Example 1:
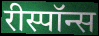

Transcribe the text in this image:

रीस्पॉन्स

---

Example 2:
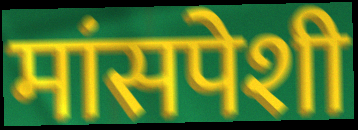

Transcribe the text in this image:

मांसपेशी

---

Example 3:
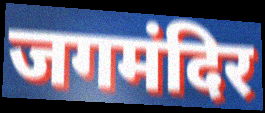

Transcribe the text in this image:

जगमंदिर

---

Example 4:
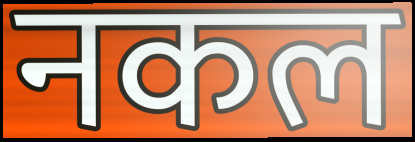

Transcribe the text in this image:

नकल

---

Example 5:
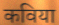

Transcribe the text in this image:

कविया